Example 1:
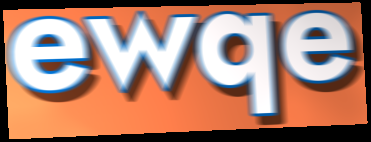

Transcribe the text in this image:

ewqe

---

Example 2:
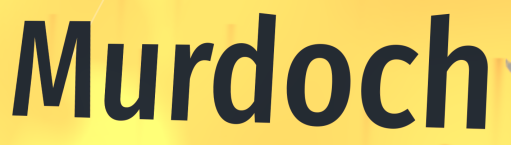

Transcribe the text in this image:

Murdoch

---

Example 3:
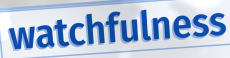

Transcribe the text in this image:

watchfulness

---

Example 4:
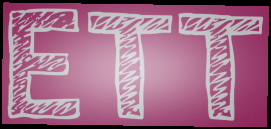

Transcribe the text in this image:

ETT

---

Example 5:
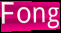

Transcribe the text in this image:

Fong